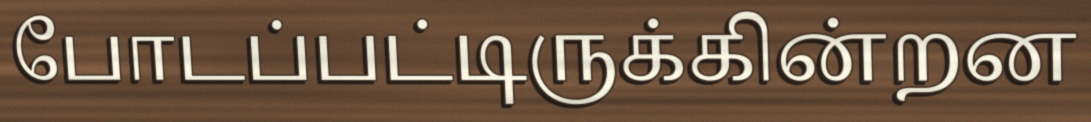
போடப்பட்டிருக்கின்றன